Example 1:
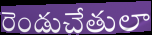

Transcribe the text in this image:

రెండుచేతులా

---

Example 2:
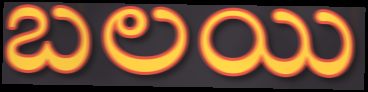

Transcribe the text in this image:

బలయి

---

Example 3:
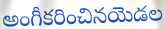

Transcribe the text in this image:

అంగీకరించినయెడల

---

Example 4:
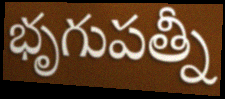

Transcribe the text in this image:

భృగుపత్నీ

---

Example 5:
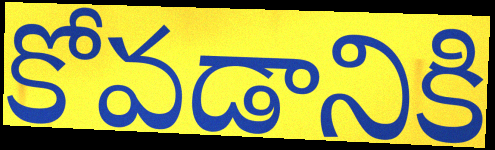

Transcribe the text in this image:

కోవడానికి